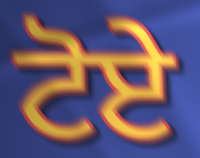
ਟੋਏ